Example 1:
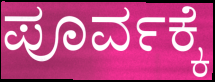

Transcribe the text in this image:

ಪೂರ್ವಕ್ಕೆ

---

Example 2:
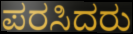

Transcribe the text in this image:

ಪರಸಿದರು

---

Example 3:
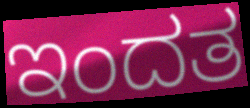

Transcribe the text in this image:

ಇಂದತ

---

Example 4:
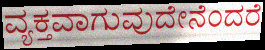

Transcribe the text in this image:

ವ್ಯಕ್ತವಾಗುವುದೇನೆಂದರೆ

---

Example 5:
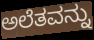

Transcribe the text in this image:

ಅಲೆತವನ್ನು